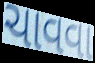
ચાવવા